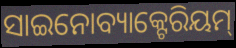
ସାଇନୋବ୍ୟାକ୍ଟେରିୟମ୍